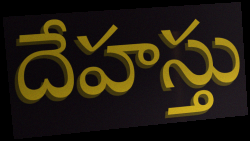
దేహస్తు